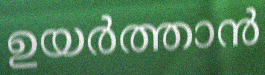
ഉയർത്താൻ